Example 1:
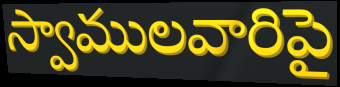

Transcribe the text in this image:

స్వాములవారిపై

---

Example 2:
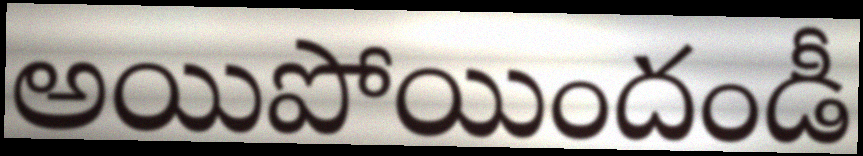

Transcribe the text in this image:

అయిపోయిందండీ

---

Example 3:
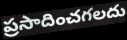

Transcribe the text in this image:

ప్రసాదించగలదు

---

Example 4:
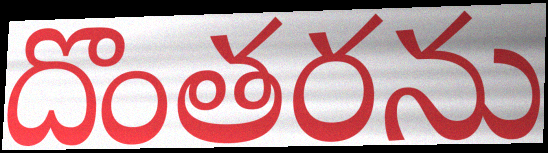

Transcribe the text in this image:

దొంతరను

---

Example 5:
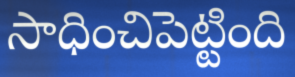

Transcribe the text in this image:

సాధించిపెట్టింది